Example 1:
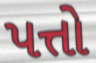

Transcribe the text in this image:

પત્તો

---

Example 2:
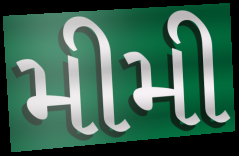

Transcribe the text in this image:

મીમી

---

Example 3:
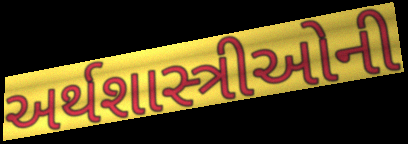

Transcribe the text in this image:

અર્થશાસ્ત્રીઓની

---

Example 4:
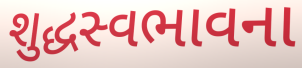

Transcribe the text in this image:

શુદ્ધસ્વભાવના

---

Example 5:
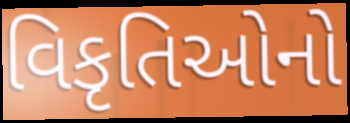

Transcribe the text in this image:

વિકૃતિઓનો